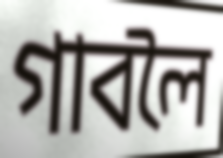
গাবলৈ